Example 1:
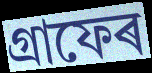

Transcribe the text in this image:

গ্ৰাফেৰ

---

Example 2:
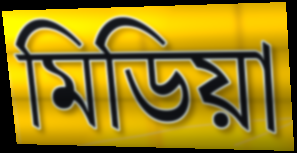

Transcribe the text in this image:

মিডিয়া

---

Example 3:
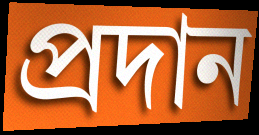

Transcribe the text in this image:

প্ৰদান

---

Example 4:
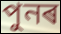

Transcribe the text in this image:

পুনৰ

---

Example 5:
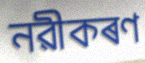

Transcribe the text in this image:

নৱীকৰণ